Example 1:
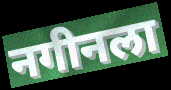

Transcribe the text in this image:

नगीनला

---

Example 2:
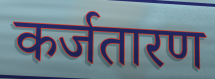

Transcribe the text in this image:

कर्जतारण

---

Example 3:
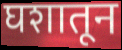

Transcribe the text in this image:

घशातून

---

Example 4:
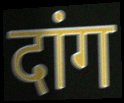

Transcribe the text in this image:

दांग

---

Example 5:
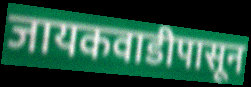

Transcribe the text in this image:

जायकवाडीपासून